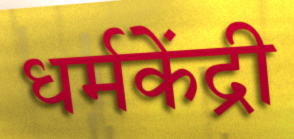
धर्मकेंद्री